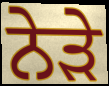
ਨੇਡ਼ੇ